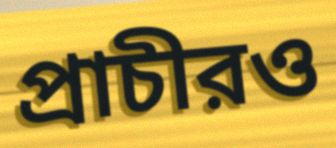
প্রাচীরও